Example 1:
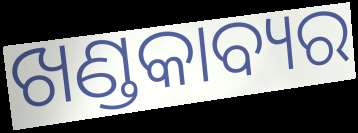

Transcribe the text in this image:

ଖଣ୍ଡକାବ୍ୟର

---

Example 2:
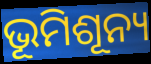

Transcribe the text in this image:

ଭୂମିଶୂନ୍ୟ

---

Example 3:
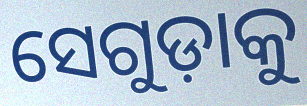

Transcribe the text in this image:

ସେଗୁଡ଼ାକୁ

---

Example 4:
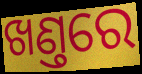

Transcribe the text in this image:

ଖଣ୍ତରେ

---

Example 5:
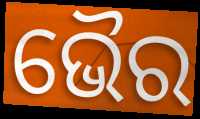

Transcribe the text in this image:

ଭୈର